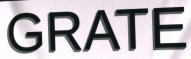
GRATE